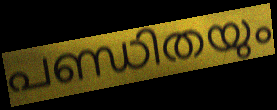
പണ്ഡിതയും